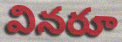
వినరూ